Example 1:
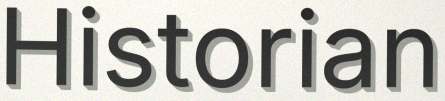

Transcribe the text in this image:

Historian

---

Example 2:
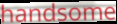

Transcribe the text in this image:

handsome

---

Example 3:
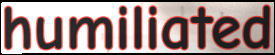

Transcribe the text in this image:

humiliated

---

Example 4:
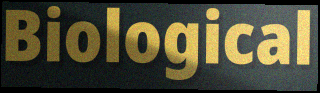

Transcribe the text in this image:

Biological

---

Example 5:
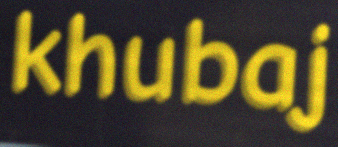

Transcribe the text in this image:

khubaj